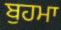
ਬੁਹਮਾ